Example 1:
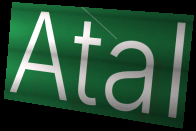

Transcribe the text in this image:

Atal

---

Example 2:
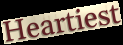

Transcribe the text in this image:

Heartiest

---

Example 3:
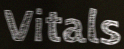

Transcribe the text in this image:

Vitals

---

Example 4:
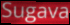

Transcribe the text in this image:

Sugava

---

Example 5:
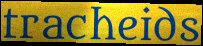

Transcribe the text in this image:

tracheids